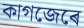
কাগজেৰে